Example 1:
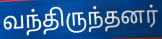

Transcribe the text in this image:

வந்திருந்தனர்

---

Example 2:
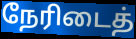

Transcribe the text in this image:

நேரிடைத்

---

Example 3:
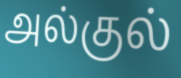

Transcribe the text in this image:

அல்குல்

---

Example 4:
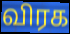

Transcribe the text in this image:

விரக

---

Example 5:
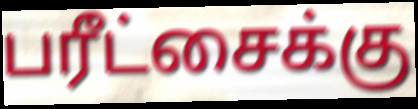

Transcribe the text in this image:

பரீட்சைக்கு